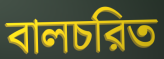
বালচরিত